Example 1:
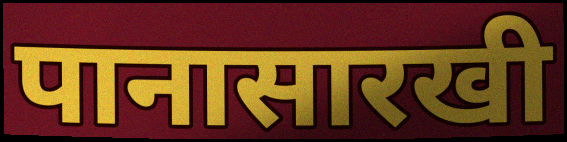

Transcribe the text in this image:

पानासारखी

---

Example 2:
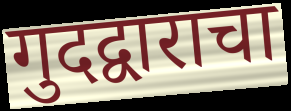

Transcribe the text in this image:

गुदद्वाराचा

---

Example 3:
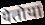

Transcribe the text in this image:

येतोया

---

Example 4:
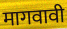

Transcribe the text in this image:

मागवावी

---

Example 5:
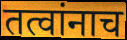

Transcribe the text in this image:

तत्वांनाच